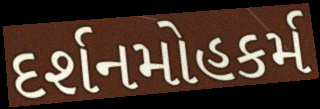
દર્શનમોહકર્મ